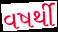
વષર્થી